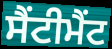
ਸੈਂਟੀਮੈਂਟ